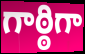
గాఠ్ఠిగా